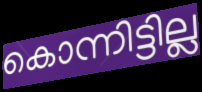
കൊന്നിട്ടില്ല